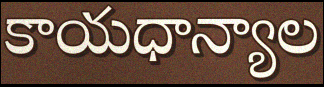
కాయధాన్యాల